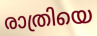
രാത്രിയെ